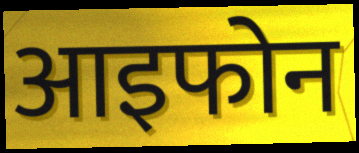
आइफोन